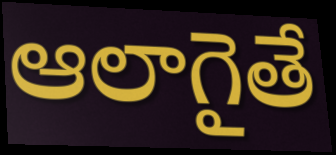
ఆలాగైతే